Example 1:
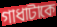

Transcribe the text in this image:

গাধাটাকে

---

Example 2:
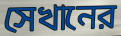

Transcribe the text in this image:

সেখানের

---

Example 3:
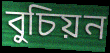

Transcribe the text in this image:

বুচিয়ন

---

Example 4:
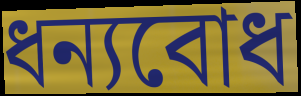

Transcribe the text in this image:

ধন্যবোধ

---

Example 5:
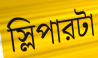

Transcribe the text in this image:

স্লিপারটা